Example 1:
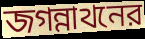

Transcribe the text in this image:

জগন্নাথনের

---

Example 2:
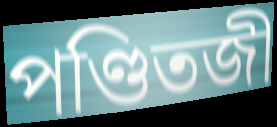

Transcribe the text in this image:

পণ্ডিতজী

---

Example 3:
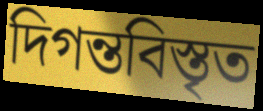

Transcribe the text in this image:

দিগন্তবিস্তৃত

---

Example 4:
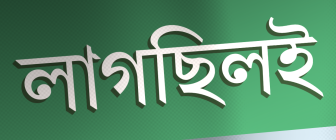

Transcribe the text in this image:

লাগছিলই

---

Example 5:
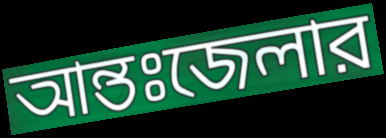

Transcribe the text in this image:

আন্তঃজেলার